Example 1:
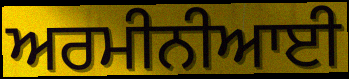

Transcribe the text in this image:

ਅਰਮੀਨੀਆਈ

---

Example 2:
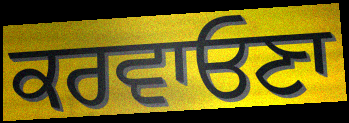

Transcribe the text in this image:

ਕਰਵਾਓਣਾ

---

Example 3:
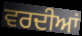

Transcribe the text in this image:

ਵਰਦੀਆਂ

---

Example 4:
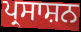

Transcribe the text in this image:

ਪ੍ਰਸਾਸ਼ਨ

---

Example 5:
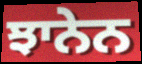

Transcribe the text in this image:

ਝਾਨੇਨ